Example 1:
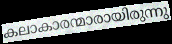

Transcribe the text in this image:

കലാകാരന്മാരായിരുന്നു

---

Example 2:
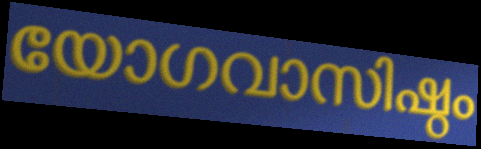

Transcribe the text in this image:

യോഗവാസിഷ്ഠം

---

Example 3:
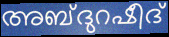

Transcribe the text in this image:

അബ്ദുറഷീദ്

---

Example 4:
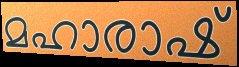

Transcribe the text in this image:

മഹാരാഷ്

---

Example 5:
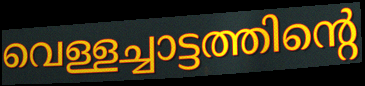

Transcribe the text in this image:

വെള്ളച്ചാട്ടത്തിന്റെ